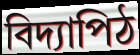
বিদ্যাপিঠ